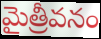
మైత్రీవనం